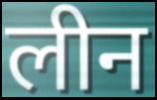
लीन